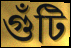
গুঁটি